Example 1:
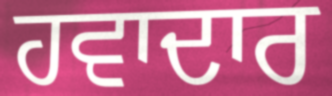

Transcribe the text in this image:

ਹਵਾਦਾਰ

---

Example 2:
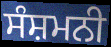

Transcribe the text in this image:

ਸੰਸ਼ਮਨੀ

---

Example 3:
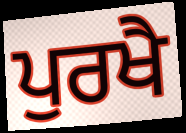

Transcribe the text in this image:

ਪੁਰਖੈ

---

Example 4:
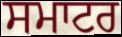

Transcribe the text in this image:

ਸਮਾਟਰ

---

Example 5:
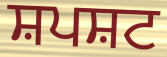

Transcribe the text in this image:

ਸ਼ਪਸ਼ਟ